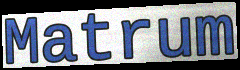
Matrum